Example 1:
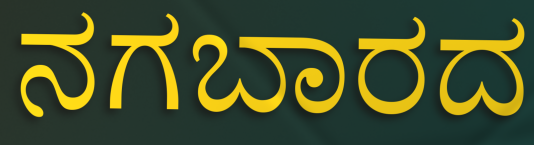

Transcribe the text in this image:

ನಗಬಾರದ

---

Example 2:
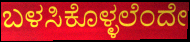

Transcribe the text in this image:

ಬಳಸಿಕೊಳ್ಳಲೆಂದೇ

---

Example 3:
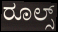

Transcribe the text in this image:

ರೂಲ್ಸ್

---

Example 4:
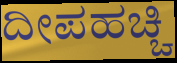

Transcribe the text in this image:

ದೀಪಹಚ್ಚಿ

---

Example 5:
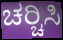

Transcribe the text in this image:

ಚರ‍್ಚಿಸಿ